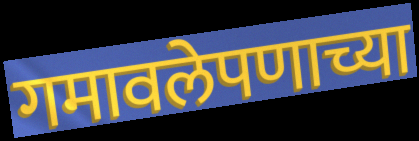
गमावलेपणाच्या